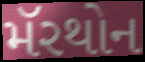
મૅરથોન